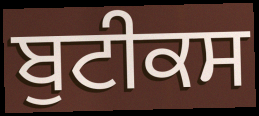
ਬੁਟੀਕਸ